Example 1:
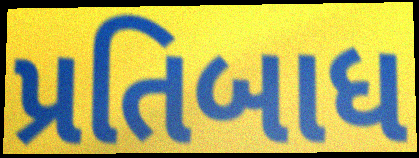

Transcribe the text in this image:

પ્રતિબાધ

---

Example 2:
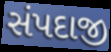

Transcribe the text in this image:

સંપદાજી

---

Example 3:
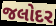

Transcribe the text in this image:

જલોદર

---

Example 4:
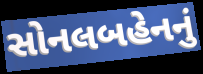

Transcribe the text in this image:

સોનલબહેનનું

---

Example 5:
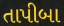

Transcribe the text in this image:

તાપીબા